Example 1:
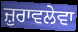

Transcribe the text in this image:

ਜ਼ੁਰਾਵਲੇਵਾ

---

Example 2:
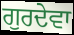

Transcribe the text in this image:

ਗੁਰਦੇਵਾ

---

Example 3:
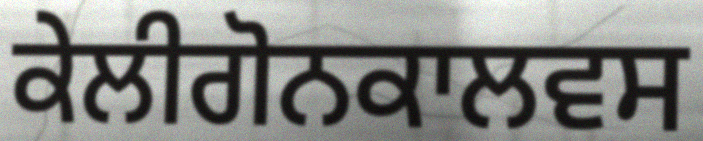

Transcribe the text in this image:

ਕੇਲੀਗੋਨਕਾਲਵਸ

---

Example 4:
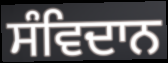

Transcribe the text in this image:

ਸੰਵਿਦਾਨ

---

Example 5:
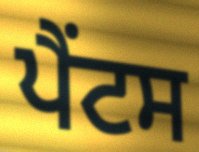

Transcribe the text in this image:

ਪੈਂਟਸ